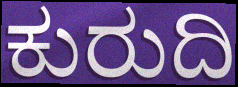
ಕುರುದಿ